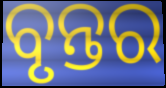
ବୃନ୍ତର